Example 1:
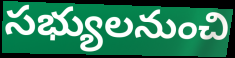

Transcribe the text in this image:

సభ్యులనుంచి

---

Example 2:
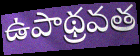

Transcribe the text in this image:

ఉపాథ్రవత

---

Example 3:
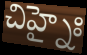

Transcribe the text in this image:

చిహ్నైః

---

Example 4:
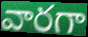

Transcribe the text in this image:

వారగా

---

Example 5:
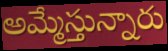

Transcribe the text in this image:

అమ్మేస్తున్నారు